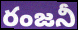
రంజనీ